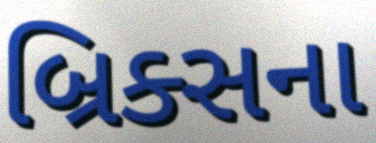
બ્રિક્સના